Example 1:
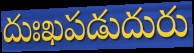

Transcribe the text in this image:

దుఃఖపడుదురు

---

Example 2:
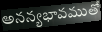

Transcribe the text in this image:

అనన్యభావముతో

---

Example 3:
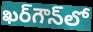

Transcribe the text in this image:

ఖర్‌గౌన్‌లో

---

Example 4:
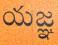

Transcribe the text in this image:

యజ్ఞ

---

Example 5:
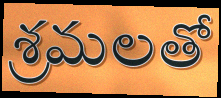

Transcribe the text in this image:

శ్రమలతో